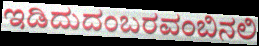
ಇಡಿದುದಂಬರವಂಬಿನಲಿ